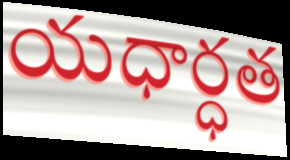
యధార్ధత